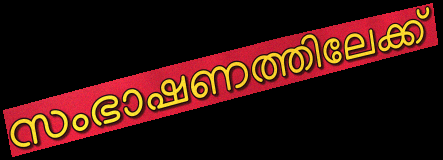
സംഭാഷണത്തിലേക്ക്